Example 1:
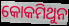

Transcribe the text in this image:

କୋକମିଥୁନ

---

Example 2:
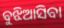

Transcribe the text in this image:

ବୁଝିଆସିବା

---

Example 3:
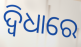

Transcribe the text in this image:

ଦ୍ୱିଧାରେ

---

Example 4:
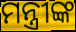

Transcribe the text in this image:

ମନ୍ତ୍ରୀଙ୍କ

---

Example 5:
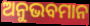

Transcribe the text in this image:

ଅନୁଭବମାନ